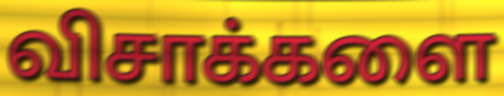
விசாக்களை